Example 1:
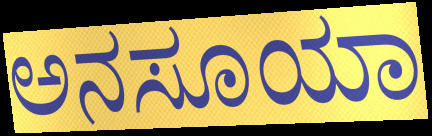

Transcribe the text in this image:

ಅನಸೂಯಾ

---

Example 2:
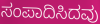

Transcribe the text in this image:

ಸಂಪಾದಿಸಿದವು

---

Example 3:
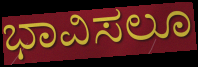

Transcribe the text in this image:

ಭಾವಿಸಲೂ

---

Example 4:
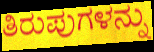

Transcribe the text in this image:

ತಿರುಪುಗಳನ್ನು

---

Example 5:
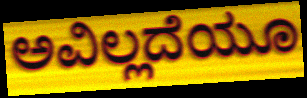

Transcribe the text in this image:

ಅವಿಲ್ಲದೆಯೂ